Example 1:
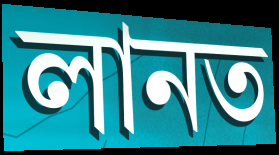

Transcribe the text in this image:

লানত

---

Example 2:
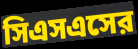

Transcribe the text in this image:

সিএসএসের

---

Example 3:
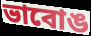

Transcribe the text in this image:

ভাবোঙ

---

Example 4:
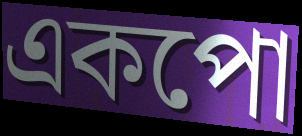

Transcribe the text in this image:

একপো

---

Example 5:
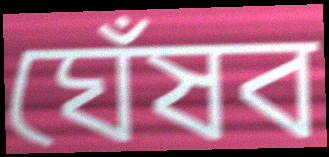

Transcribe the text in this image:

ঘেঁষব